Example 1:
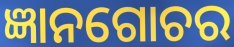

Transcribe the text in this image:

ଜ୍ଞାନଗୋଚର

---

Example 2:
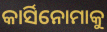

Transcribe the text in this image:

କାର୍ସିନୋମାକୁ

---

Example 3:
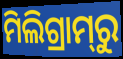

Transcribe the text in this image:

ମିଲିଗ୍ରାମ୍‌ରୁ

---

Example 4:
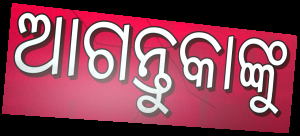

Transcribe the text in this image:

ଆଗନ୍ତୁକାଙ୍କୁ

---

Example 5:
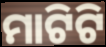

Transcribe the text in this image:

ମାଟିଟି